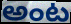
అంట